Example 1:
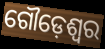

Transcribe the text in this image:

ଗୌଡ଼େଶ୍ୱର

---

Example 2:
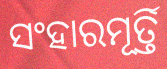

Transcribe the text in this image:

ସଂହାରମୂର୍ତ୍ତି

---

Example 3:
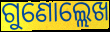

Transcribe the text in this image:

ଗୁଣୋଲ୍ଲେଖ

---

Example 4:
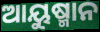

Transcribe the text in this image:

ଆୟୁଷ୍ମାନ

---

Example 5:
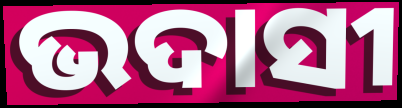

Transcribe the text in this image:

ଭଦାସୀ